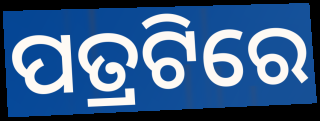
ପତ୍ରଟିରେ